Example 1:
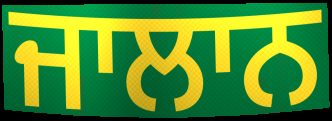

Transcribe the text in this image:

ਜਾਲਾਨ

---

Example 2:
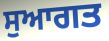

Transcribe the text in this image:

ਸੁਆਗਤ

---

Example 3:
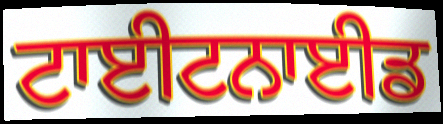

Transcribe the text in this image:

ਟਾਈਟਨਾਈਡ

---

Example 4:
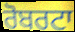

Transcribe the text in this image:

ਰੋਬਰਟਾ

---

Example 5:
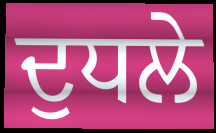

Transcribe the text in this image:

ਦੁਧਲੇ